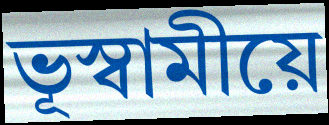
ভূস্বামীয়ে